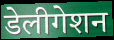
डेलीगेशन